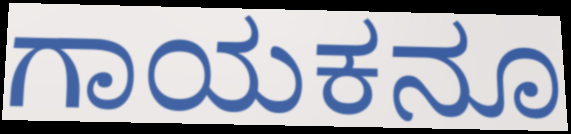
ಗಾಯಕನೂ